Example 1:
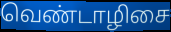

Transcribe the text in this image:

வெண்டாழிசை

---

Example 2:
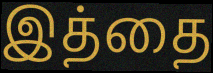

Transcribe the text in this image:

இத்தை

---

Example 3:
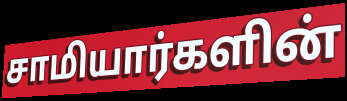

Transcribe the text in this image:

சாமியார்களின்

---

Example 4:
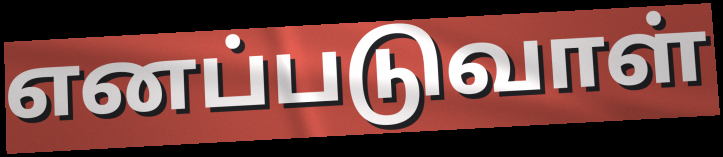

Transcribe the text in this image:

எனப்படுவாள்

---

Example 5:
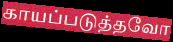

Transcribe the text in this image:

காயப்படுத்தவோ